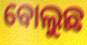
ବୋଲୁଛ